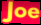
Joe